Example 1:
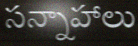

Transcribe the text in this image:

సన్నాహాలు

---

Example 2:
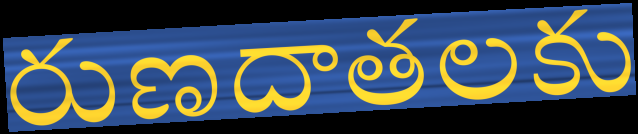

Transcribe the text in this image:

రుణదాతలకు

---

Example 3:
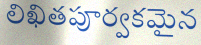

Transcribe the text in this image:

లిఖితపూర్వకమైన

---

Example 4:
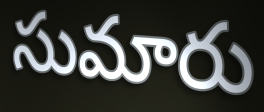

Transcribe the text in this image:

సుమారు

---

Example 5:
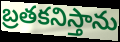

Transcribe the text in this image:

బ్రతకనిస్తాను